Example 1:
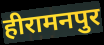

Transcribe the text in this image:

हीरामनपुर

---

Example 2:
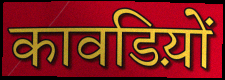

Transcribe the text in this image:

कावडिय़ों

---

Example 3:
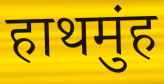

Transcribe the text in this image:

हाथमुंह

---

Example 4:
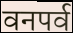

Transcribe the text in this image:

वनपर्व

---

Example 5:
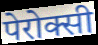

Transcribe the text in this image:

पेरोक्सी